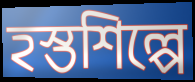
হস্তশিল্পে